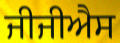
ਜੀਜੀਐਸ